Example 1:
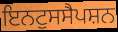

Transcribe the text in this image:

ਇਨਟੁਸਸੈਪਸ਼ਨ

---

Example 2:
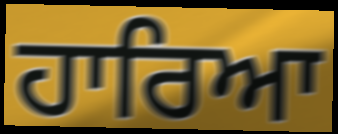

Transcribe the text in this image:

ਹਾਰਿਆ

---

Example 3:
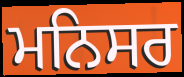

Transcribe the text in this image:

ਮਨਿਸਰ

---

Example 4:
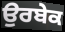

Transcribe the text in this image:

ਉਰਬੇਕ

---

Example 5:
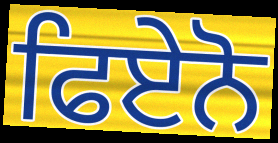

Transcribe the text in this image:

ਫਿਏਨੋ